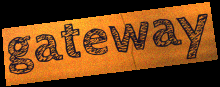
gateway